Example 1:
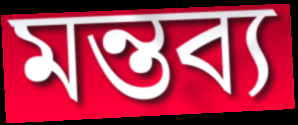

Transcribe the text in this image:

মন্তব্য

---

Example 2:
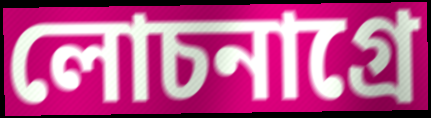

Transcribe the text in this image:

লোচনাগ্রে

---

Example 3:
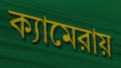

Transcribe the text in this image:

ক্যামেরায়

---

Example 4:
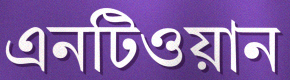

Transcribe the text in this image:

এনটিওয়ান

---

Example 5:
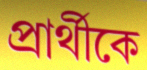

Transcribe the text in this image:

প্রার্থীকে